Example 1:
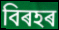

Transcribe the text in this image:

বিৰহৰ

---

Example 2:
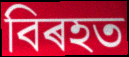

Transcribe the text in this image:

বিৰহত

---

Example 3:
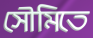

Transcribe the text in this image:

সৌমিতে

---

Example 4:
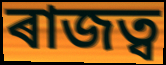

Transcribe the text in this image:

ৰাজত্ব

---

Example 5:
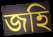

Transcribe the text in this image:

জহি